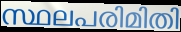
സ്ഥലപരിമിതി